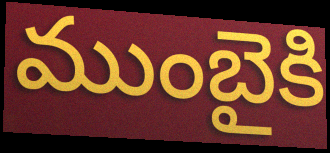
ముంబైకి